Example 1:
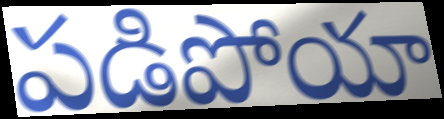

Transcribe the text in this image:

పడిపోయా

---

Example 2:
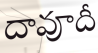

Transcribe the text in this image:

దావూదీ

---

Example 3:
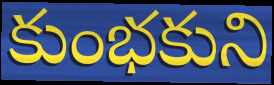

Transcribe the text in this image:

కుంభకుని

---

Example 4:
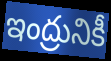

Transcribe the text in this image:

ఇంద్రునికీ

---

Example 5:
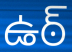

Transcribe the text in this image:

ఉఠ్